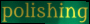
polishing